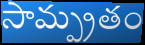
సామ్ప్రతం